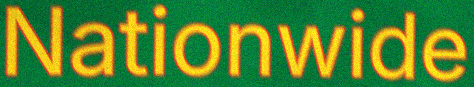
Nationwide